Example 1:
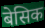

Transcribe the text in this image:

बेसिक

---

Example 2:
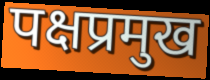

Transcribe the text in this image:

पक्षप्रमुख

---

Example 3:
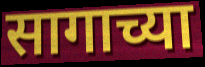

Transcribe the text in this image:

सागाच्या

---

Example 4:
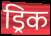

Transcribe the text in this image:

ड्रिक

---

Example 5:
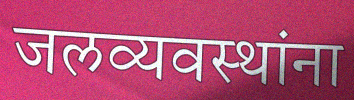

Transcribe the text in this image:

जलव्यवस्थांना